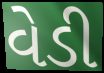
વેડી